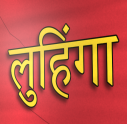
लुहिंगा